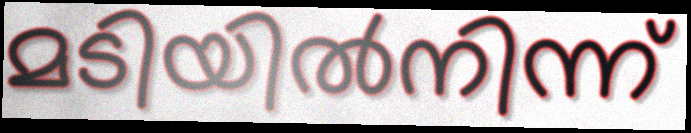
മടിയിൽനിന്ന്